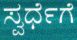
ಸ್ವರ್ಧೆಗೆ